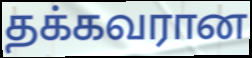
தக்கவரான